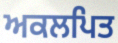
ਅਕਲਪਿਤ